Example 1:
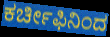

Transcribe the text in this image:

ಕರ್ಚೀಫಿನಿಂದ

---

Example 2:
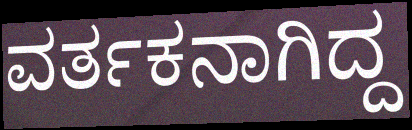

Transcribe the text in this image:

ವರ್ತಕನಾಗಿದ್ದ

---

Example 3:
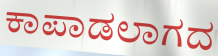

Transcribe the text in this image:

ಕಾಪಾಡಲಾಗದ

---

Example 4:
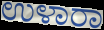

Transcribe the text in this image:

ಉಳಾರಾ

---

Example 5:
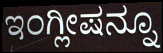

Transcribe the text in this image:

ಇಂಗ್ಲೀಷನ್ನೂ